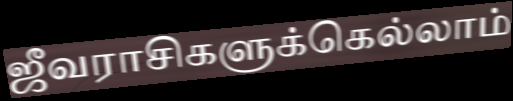
ஜீவராசிகளுக்கெல்லாம்